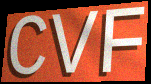
CVF